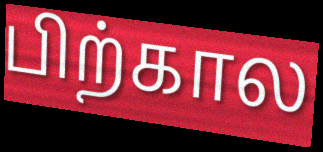
பிற்கால